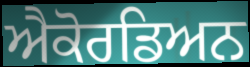
ਐਕੋਰਡਿਅਨ